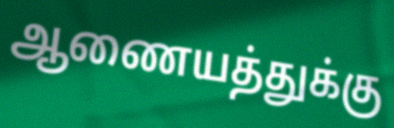
ஆணையத்துக்கு